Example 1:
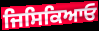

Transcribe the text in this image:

ਜਿਸਿਕਿਆਓ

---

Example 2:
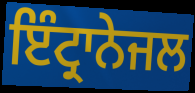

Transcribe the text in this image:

ਇੰਟ੍ਰਾਨੇਜਲ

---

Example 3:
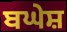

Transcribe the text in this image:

ਬਘੇਸ਼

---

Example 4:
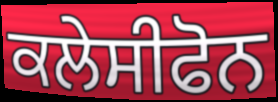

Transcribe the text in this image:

ਕਲੇਸੀਫੋਨ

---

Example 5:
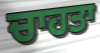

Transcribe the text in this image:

ਚਾਹਤਾ